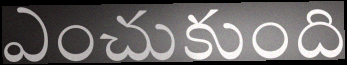
ఎంచుకుంది